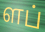
ளப்